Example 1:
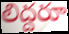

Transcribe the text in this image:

లిద్దరూ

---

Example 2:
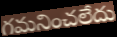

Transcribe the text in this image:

గమనించలేదు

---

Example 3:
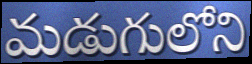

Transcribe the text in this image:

మడుగులోని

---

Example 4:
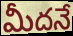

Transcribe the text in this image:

మీదనే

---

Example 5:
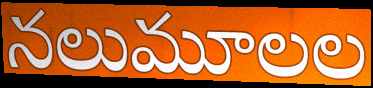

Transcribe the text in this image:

నలుమూలల